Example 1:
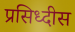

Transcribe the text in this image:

प्रसिध्दीस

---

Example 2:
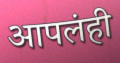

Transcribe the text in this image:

आपलंही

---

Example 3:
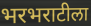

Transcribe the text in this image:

भरभराटीला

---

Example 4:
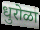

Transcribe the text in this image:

धुरोळा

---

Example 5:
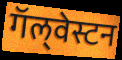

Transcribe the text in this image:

गॅल्वेस्टन